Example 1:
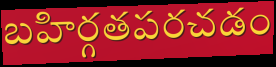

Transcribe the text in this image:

బహిర్గతపరచడం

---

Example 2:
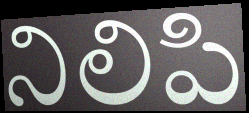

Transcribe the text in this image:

నిలిపి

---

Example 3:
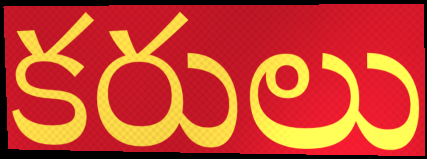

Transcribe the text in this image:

కరులు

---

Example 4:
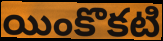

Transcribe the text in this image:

యింకొకటి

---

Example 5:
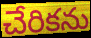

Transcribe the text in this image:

చేరికను